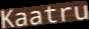
Kaatru